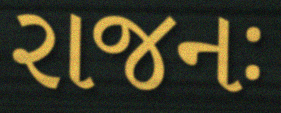
રાજનઃ